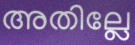
അതില്ലേ